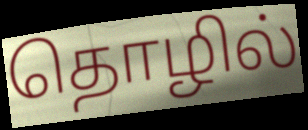
தொழில்